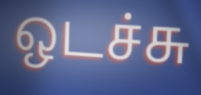
ஒடச்சு